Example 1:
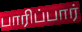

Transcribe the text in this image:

பாரிப்பார்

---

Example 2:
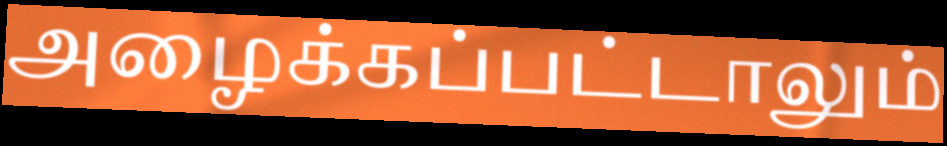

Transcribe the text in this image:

அழைக்கப்பட்டாலும்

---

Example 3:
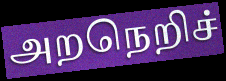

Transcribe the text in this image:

அறநெறிச்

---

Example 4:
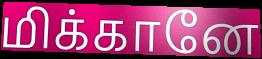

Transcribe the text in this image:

மிக்கானே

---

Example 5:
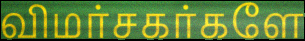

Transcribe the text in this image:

விமர்சகர்களே